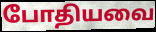
போதியவை